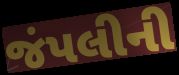
જંપલીની